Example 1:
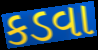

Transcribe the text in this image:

કડવા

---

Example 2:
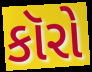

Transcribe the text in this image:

કૉરો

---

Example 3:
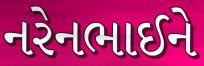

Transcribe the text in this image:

નરેનભાઈને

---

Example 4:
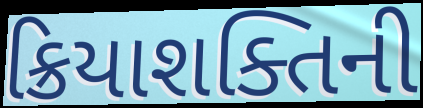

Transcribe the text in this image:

ક્રિયાશક્તિની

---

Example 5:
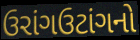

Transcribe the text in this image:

ઉરાંગઉટાંગનો